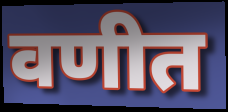
वणीत